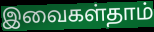
இவைகள்தாம்